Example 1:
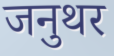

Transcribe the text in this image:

जनुथर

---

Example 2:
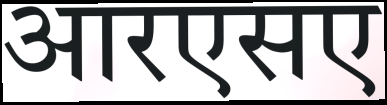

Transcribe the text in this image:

आरएसए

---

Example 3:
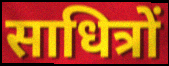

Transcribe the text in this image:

साधित्रों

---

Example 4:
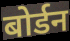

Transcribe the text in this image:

बोर्डन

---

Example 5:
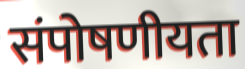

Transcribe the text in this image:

संपोषणीयता